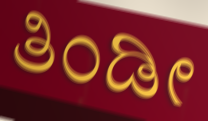
ತಿಂಡೀ